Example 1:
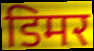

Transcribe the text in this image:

डिमर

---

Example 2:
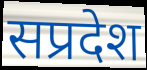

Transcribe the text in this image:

सप्रदेश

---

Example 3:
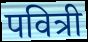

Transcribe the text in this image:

पवित्री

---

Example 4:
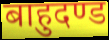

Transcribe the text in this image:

बाहुदण्ड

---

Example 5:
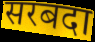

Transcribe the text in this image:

सरबदा